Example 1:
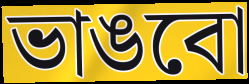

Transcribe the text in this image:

ভাঙবো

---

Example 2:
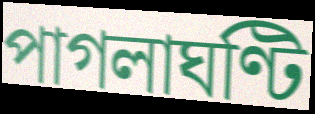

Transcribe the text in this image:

পাগলাঘণ্টি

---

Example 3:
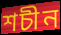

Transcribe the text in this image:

শচীন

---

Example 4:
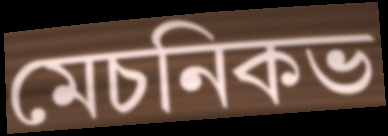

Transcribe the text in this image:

মেচনিকভ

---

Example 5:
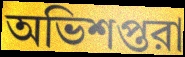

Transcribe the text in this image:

অভিশপ্তরা